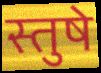
स्तुषे